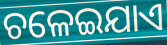
ଚଳେଇଯାଏ